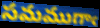
సమముగాఁ